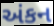
અંકન